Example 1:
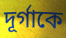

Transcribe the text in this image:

দূর্গাকে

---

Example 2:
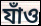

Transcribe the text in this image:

যাঁও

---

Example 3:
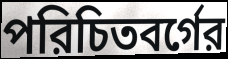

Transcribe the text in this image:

পরিচিতবর্গের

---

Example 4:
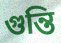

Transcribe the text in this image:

গুন্তি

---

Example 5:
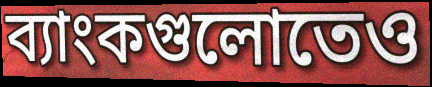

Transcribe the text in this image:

ব্যাংকগুলোতেও